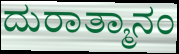
ದುರಾತ್ಮಾನಂ